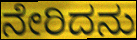
ನೇರಿದನು